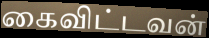
கைவிட்டவன்